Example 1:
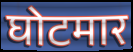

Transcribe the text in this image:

घोटमार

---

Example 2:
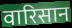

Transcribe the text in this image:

वारिसान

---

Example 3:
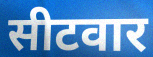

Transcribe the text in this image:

सीटवार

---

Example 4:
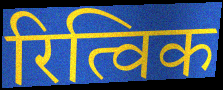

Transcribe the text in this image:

रित्विक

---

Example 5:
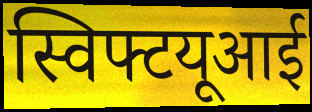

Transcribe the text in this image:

स्विफ्टयूआई